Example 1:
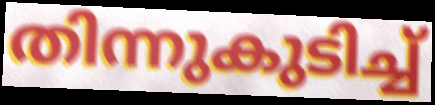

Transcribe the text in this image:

തിന്നുകുടിച്ച്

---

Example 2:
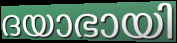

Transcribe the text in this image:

ദയാഭായി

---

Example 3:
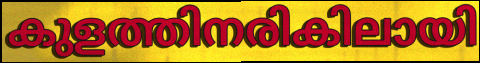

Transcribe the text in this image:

കുളത്തിനരികിലായി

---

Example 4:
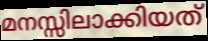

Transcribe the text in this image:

മനസ്സിലാക്കിയത്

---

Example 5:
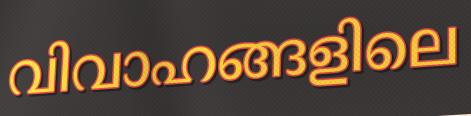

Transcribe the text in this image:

വിവാഹങ്ങളിലെ